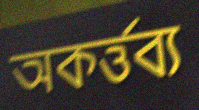
অকর্ত্তব্য